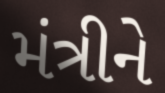
મંત્રીને